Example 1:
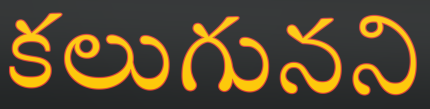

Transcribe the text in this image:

కలుగునని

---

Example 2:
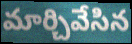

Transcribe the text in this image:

మార్చివేసిన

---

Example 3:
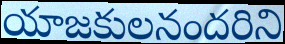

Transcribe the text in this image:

యాజకులనందరిని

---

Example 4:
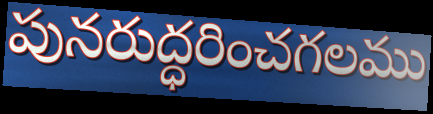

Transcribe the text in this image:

పునరుద్ధరించగలము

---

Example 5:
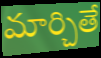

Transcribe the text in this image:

మార్చితే